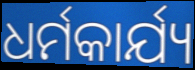
ଧର୍ମକାର୍ଯ୍ୟ